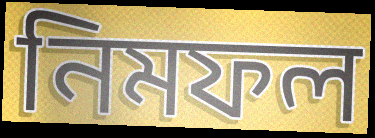
নিমফল